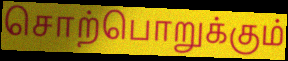
சொற்பொறுக்கும்